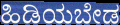
ಹಿಡಿಯಬೇಡ